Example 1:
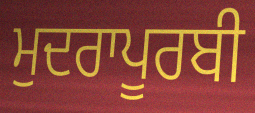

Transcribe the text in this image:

ਮੁਦਰਾਪੂਰਬੀ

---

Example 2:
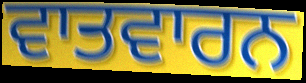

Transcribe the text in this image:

ਵਾਤਵਾਰਨ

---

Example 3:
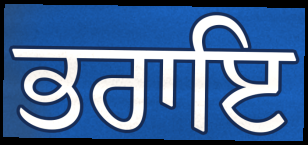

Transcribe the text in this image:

ਭਰਾਇ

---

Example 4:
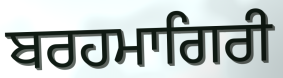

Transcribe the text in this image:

ਬਰਹਮਾਗਿਰੀ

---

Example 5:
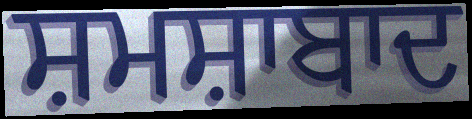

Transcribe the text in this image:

ਸ਼ਮਸ਼ਾਬਾਦ